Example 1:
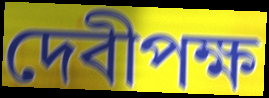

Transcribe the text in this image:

দেবীপক্ষ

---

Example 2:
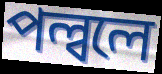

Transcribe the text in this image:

পল্বলে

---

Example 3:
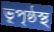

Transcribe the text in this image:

ভূপৃষ্ঠস্থ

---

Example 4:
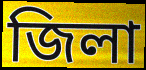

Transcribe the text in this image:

জিলা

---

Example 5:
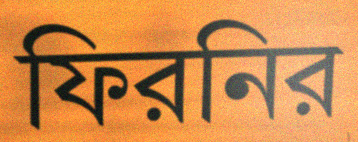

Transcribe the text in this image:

ফিরনির